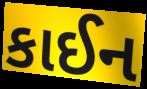
કાઈન